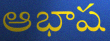
ఆభాష